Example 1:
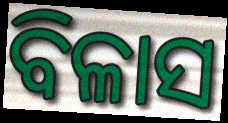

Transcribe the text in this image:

ବିଳାସ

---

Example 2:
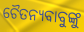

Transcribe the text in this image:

ଚୈତନ୍ୟବାବୁଙ୍କୁ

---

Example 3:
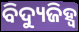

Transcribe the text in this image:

ବିଦ୍ୟୁଜିହ୍ୱ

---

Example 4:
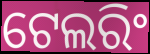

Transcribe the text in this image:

ଟେଲରିଂ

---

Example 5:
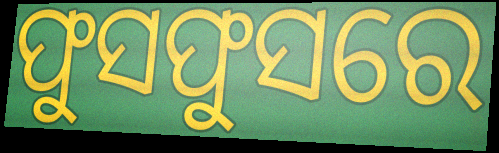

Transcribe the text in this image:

ଫୁସଫୁସରେ